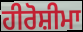
ਹੀਰੋਸ਼ੀਮਾ